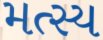
મત્સ્ય